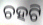
ଚହଟି